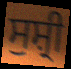
ਸੁਸ਼੍ਰੀ